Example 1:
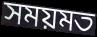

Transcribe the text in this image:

সময়মত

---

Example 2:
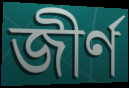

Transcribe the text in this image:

জীর্ণ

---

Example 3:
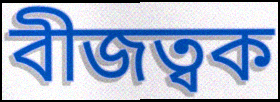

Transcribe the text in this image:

বীজত্বক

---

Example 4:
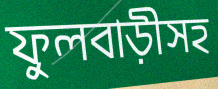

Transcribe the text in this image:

ফুলবাড়ীসহ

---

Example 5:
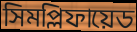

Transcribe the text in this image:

সিমপ্লিফায়েড